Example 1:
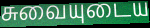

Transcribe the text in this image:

சுவையுடைய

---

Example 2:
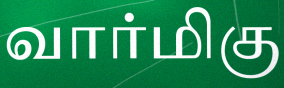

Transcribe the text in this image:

வார்மிகு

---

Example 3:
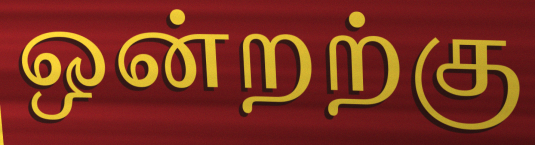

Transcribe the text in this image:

ஒன்றற்கு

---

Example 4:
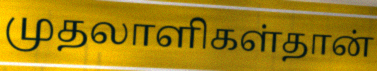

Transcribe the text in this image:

முதலாளிகள்தான்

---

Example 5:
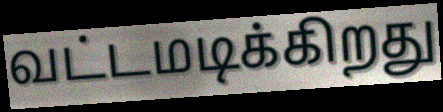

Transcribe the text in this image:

வட்டமடிக்கிறது